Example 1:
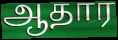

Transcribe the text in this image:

ஆதார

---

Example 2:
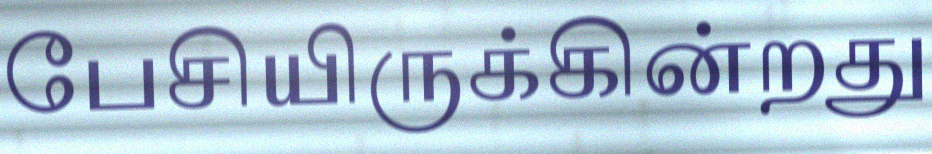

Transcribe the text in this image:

பேசியிருக்கின்றது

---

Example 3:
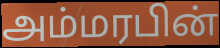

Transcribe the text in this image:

அம்மரபின்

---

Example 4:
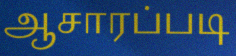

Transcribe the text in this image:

ஆசாரப்படி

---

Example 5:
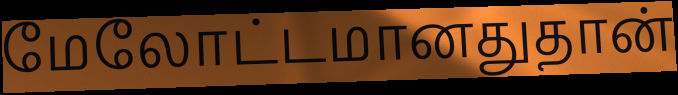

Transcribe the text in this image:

மேலோட்டமானதுதான்